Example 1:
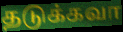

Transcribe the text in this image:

தடுக்கவா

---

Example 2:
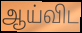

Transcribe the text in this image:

ஆய்விட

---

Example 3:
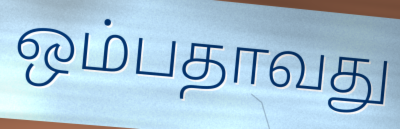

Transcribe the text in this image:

ஒம்பதாவது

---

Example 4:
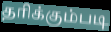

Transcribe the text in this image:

தரிக்கும்படி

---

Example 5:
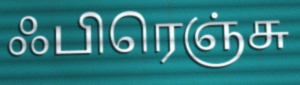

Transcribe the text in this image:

ஃபிரெஞ்சு